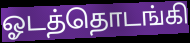
ஓடத்தொடங்கி